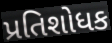
પ્રતિશોધક